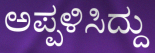
ಅಪ್ಪಳಿಸಿದ್ದು